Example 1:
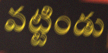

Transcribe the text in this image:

వట్టిండు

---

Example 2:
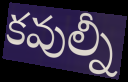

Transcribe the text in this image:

కవుల్నీ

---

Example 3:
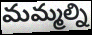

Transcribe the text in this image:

మమ్మల్ని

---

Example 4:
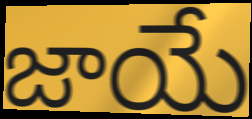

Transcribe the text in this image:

జాయే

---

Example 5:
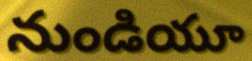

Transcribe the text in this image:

నుండియూ